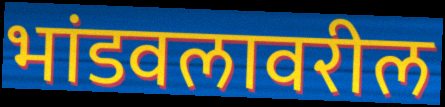
भांडवलावरील